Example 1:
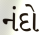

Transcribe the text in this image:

નંદો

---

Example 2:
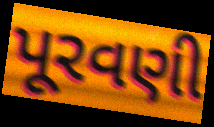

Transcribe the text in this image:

પૂરવણી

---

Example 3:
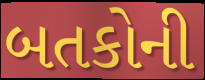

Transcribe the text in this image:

બતકોની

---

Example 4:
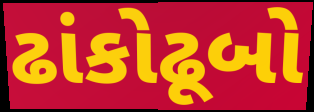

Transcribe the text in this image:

ઢાંકોઢૂબો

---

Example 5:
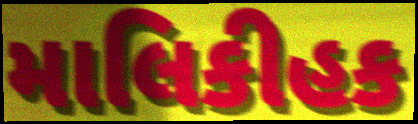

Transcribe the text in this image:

માલિકીહક